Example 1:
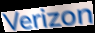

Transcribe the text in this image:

Verizon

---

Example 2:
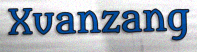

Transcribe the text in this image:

Xuanzang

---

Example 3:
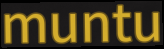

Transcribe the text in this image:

muntu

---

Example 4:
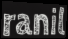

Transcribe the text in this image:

ranil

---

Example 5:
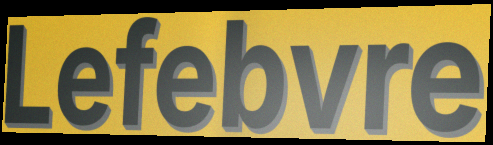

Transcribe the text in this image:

Lefebvre